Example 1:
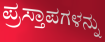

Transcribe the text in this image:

ಪ್ರಸ್ತಾಪಗಳನ್ನು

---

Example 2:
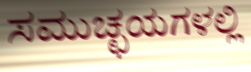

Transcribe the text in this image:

ಸಮುಚ್ಛಯಗಳಲ್ಲಿ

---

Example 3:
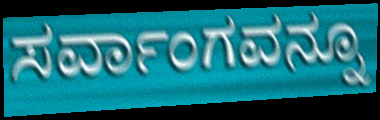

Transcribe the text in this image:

ಸರ್ವಾಂಗವನ್ನೂ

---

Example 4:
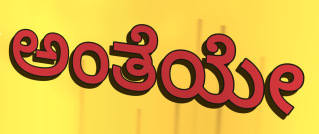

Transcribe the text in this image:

ಅಂತೆಯೇ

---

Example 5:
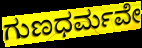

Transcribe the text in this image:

ಗುಣಧರ್ಮವೇ